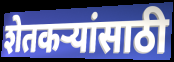
शेतकर्‍यांसाठी